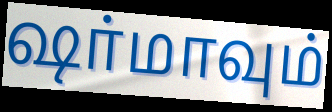
ஷர்மாவும்